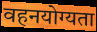
वहनयोग्यता